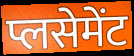
प्लसेमेंट